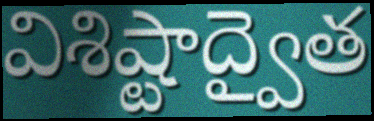
విశిష్టాద్వైత